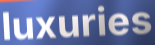
luxuries